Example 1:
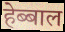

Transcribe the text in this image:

हेब्बाल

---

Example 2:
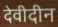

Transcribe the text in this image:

देवीदीन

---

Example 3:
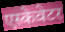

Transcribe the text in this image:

एस्केवेटर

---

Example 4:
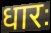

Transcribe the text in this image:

धारः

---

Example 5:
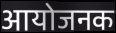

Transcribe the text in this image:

आयोजनक